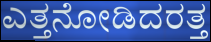
ಎತ್ತನೋಡಿದರತ್ತ